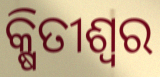
କ୍ଷିତୀଶ୍ୱର